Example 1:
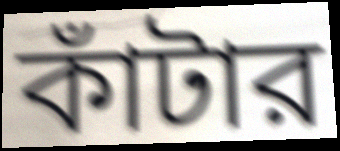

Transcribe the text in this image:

কাঁটার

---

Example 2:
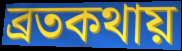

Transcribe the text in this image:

ব্রতকথায়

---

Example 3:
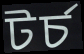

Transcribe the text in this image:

টর্চ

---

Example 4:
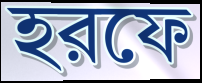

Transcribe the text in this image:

হরফে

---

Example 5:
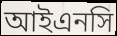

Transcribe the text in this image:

আইএনসি